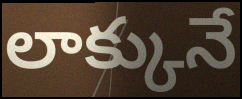
లాక్కునే